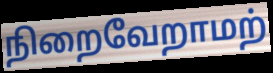
நிறைவேறாமற்